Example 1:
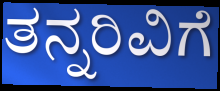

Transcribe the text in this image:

ತನ್ನರಿವಿಗೆ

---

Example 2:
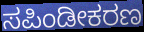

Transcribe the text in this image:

ಸಪಿಂಡೀಕರಣ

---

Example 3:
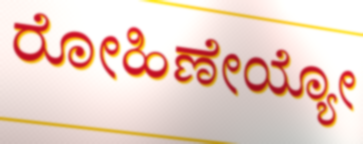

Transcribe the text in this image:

ರೋಹಿಣೇಯ್ಯೋ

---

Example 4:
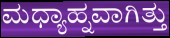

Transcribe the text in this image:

ಮಧ್ಯಾಹ್ನವಾಗಿತ್ತು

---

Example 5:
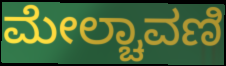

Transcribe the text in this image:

ಮೇಲ್ಚಾವಣಿ